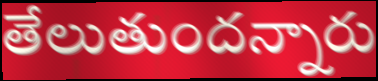
తేలుతుందన్నారు